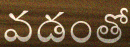
వడంతో